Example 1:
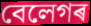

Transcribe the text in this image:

বেলেগৰ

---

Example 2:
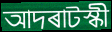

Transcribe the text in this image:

আদৰাটস্কী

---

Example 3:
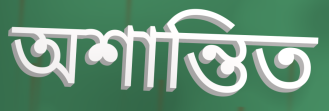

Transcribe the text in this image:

অশান্তিত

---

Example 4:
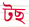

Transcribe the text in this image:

টছ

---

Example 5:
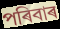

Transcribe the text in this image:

পৰিবাৰ